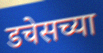
डचेसच्या